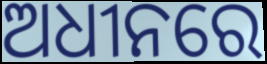
ଅଧୀନରେ